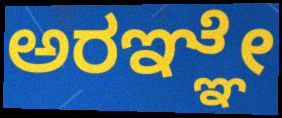
ಅರಞ್ಞೇ